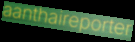
aanthaireporter